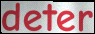
deter